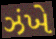
ઝંખે